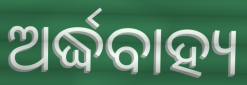
ଅର୍ଦ୍ଧବାହ୍ୟ